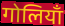
गोलियाँ